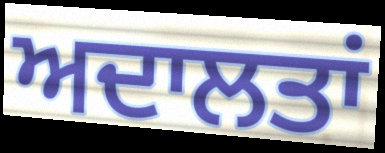
ਅਦਾਲਤਾਂ